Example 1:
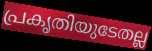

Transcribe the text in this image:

പ്രകൃതിയുടേതല്ല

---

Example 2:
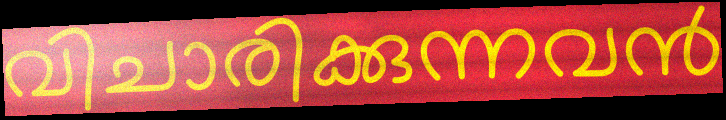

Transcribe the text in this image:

വിചാരിക്കുന്നവൻ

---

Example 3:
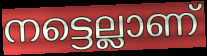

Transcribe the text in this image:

നട്ടെല്ലാണ്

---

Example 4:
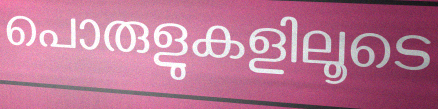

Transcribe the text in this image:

പൊരുളുകളിലൂടെ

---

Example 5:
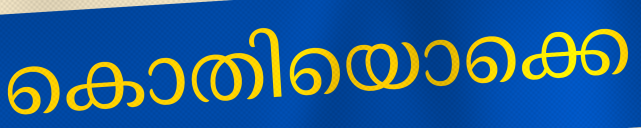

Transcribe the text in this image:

കൊതിയൊക്കെ